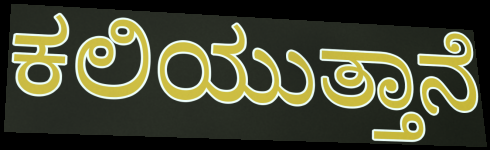
ಕಲಿಯುತ್ತಾನೆ